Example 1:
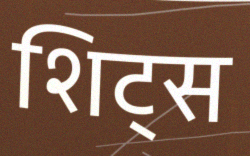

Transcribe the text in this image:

शिट्स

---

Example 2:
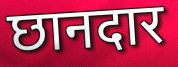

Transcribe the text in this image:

छानदार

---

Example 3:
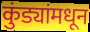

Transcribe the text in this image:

कुंड्यांमधून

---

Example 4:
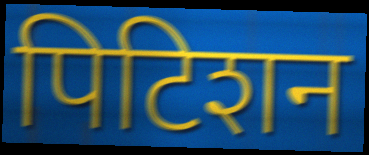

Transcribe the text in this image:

पिटिशन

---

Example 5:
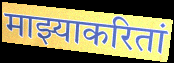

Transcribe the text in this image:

माझ्याकरितां